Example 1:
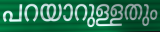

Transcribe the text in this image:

പറയാറുള്ളതും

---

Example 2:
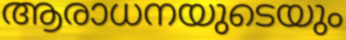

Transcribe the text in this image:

ആരാധനയുടെയും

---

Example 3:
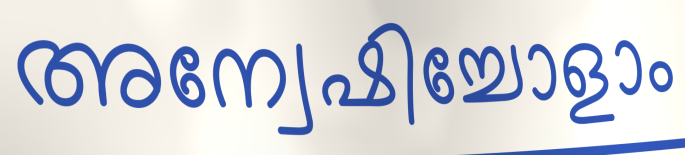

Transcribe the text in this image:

അന്വേഷിച്ചോളാം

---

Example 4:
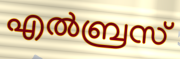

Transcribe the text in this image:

എൽബ്രസ്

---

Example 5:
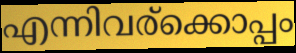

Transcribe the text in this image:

എന്നിവര്ക്കൊപ്പം